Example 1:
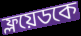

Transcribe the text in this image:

ফ্লয়েডকে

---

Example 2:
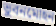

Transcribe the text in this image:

ভুবনমোহন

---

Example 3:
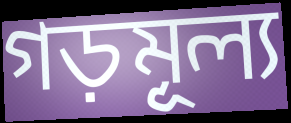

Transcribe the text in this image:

গড়মূল্য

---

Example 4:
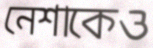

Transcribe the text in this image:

নেশাকেও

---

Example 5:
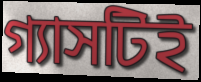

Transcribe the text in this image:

গ্যাসটিই